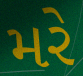
મરે